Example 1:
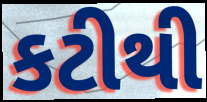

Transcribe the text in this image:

કટીથી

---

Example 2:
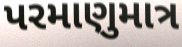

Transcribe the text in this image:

પરમાણુમાત્ર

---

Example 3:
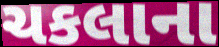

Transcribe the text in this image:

ચકલાના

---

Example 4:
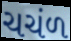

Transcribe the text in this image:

ચચંળ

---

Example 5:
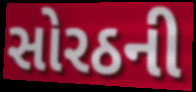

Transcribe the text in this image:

સોરઠની